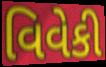
વિવેકી